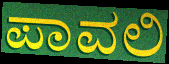
ಪಾವಲಿ